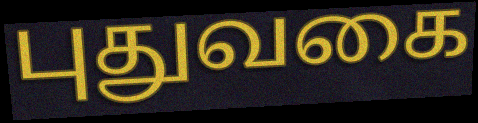
புதுவகை